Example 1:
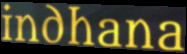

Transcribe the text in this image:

indhana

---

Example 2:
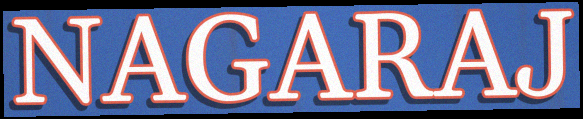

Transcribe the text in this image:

NAGARAJ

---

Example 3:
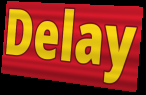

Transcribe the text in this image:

Delay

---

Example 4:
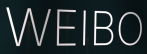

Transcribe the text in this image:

WEIBO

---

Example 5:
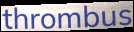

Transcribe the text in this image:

thrombus